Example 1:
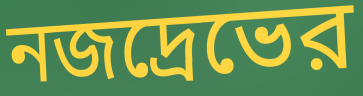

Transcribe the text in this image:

নজদ্রেভের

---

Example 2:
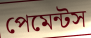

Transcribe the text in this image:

পেমেন্টস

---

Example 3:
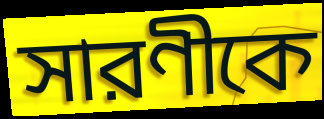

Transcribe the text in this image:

সারণীকে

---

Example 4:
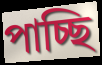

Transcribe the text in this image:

পাচ্ছি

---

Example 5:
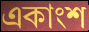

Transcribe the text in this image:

একাংশ